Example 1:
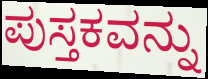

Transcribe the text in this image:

ಪುಸ್ತಕವನ್ನು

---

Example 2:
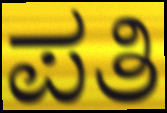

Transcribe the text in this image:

ಪತಿ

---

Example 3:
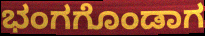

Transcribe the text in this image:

ಭಂಗಗೊಂಡಾಗ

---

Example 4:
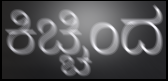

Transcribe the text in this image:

ಕಿಚ್ಚಿಂದ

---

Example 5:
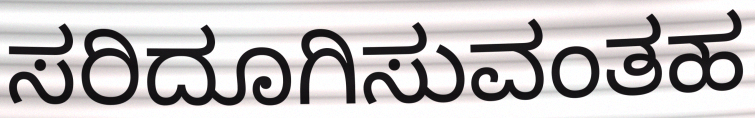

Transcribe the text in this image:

ಸರಿದೂಗಿಸುವಂತಹ